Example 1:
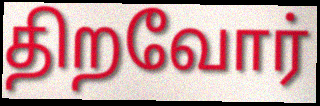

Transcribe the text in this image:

திறவோர்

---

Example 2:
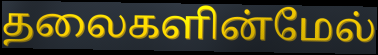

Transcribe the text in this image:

தலைகளின்மேல்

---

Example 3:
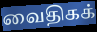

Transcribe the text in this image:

வைதிகக்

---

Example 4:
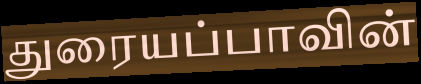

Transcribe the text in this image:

துரையப்பாவின்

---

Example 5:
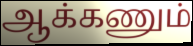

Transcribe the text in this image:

ஆக்கணும்